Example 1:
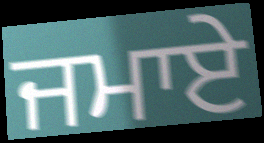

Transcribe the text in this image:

ਜਮਾਏ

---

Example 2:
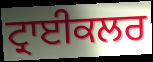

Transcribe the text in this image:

ਟ੍ਰਾਈਕਲਰ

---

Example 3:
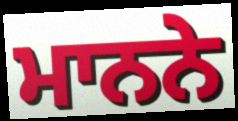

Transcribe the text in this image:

ਮਾਨਨੇ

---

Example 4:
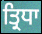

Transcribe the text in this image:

ਤ੍ਰਿਧਾ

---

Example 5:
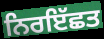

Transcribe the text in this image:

ਨਿਰਇੱਛਤ